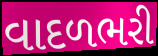
વાદળભરી